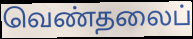
வெண்தலைப்